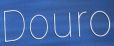
Douro